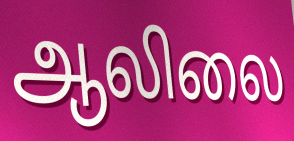
ஆலிலை